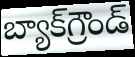
బ్యాక్‌గ్రౌండ్